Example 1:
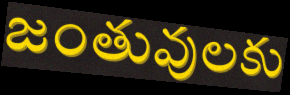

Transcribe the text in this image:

జంతువులకు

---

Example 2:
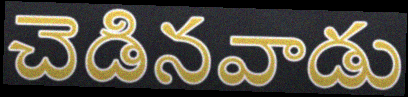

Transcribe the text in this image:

చెడినవాడు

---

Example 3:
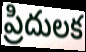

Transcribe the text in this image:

ప్రిదులక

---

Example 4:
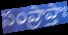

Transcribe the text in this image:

సంప్రాప్తాః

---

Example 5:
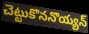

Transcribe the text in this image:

చెట్టుకొననొయ్యన్